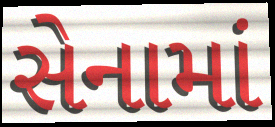
સેનામાં